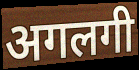
अगलगी